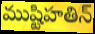
ముష్టిహతిన్